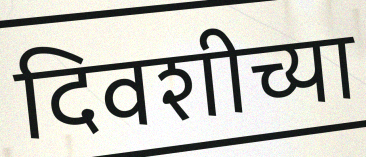
दिवशीच्या